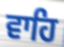
ਵਾਹਿ